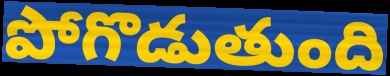
పోగొడుతుంది